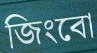
জিংবো